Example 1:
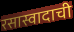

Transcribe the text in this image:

रसास्वादाची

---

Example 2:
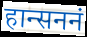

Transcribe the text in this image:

हान्सननं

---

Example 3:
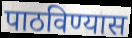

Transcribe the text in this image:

पाठविण्यास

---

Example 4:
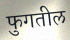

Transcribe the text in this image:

फुगतील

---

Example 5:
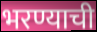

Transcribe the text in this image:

भरण्याची